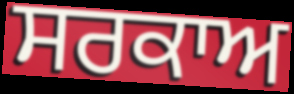
ਸਰਕਾਅ